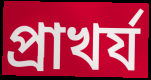
প্রাখর্য